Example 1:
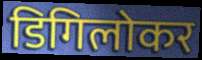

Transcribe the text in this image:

डिगिलोकर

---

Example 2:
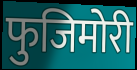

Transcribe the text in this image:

फुजिमोरी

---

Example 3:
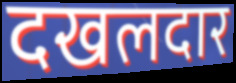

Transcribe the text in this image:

दखलदार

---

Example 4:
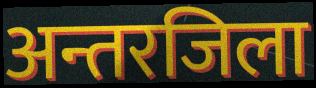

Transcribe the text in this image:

अन्तरजिला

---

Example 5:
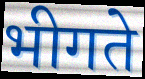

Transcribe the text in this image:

भीगते